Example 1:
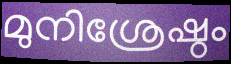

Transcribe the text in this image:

മുനിശ്രേഷ്ഠം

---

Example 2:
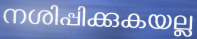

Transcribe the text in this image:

നശിപ്പിക്കുകയല്ല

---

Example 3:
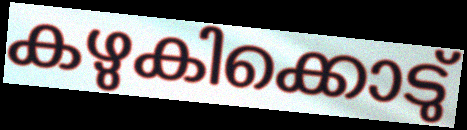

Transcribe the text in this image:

കഴുകിക്കൊടു്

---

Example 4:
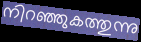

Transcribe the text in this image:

നിറഞ്ഞുകത്തുന്നു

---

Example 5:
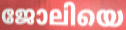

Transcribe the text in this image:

ജോലിയെ